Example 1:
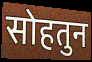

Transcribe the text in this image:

सोहतुन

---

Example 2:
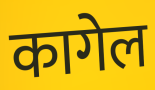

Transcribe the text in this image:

कागेल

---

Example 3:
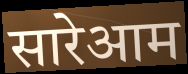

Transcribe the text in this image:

सारेआम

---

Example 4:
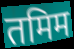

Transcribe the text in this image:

तमिम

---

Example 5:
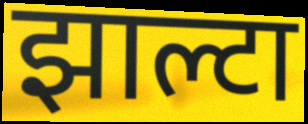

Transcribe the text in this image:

झाल्टा